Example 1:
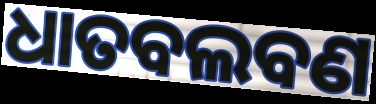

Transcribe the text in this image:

ଧାତବଲବଣ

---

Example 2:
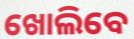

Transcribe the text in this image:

ଖୋଲିବେ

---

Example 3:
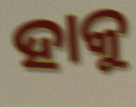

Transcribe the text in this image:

ହାକୁ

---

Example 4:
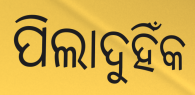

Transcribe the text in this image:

ପିଲାଦୁହିଁକ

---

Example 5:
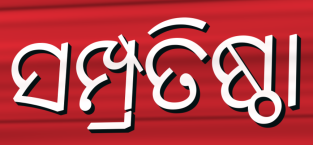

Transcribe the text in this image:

ସମ୍ପ୍ରତିଷ୍ଠା